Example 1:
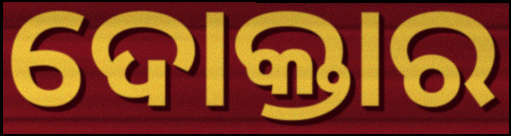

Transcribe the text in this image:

ଦୋକ୍ତାର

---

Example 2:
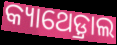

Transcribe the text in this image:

କ୍ୟାଥେଡ଼୍ରାଲ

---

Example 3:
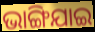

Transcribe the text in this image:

ଭାଙ୍ଗିଯାଇ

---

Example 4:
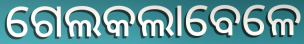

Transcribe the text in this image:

ଗେଲକଲାବେଳେ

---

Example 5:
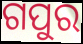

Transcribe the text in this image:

ଗପୁର